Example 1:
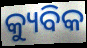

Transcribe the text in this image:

କ୍ୟୁବିକ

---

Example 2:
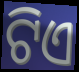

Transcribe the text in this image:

ଟିଏ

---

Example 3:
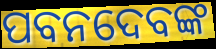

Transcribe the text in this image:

ପବନଦେବଙ୍କ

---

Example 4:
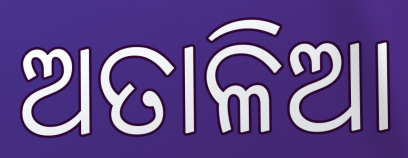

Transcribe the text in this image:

ଅତାଳିଆ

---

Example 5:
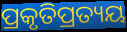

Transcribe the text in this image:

ପ୍ରକୃତିପ୍ରତ୍ୟୟ